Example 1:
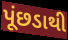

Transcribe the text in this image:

પૂંછડાથી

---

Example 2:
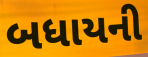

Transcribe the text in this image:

બધાયની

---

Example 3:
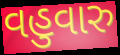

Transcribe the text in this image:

વહુવારુ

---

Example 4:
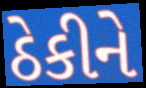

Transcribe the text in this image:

ઠેકીને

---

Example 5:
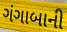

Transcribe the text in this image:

ગંગાબાની